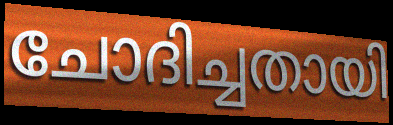
ചോദിച്ചതായി